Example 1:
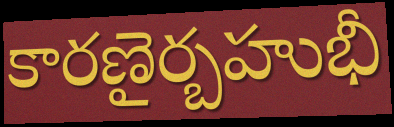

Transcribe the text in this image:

కారణైర్బహుభీ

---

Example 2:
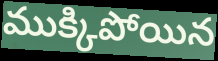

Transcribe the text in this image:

ముక్కిపోయిన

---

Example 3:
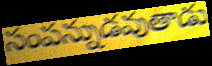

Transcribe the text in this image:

సంపన్నుడవుతాడు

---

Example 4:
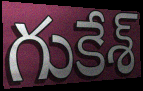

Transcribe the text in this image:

గుకేశ్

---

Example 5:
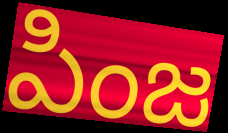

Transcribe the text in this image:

పింజ